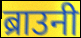
ब्राउनी